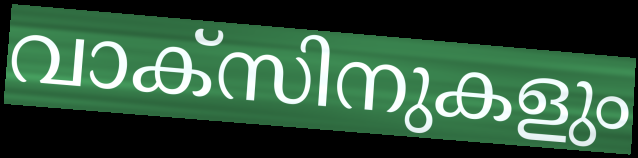
വാക്സിനുകളും